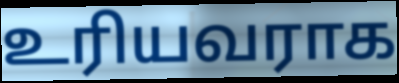
உரியவராக